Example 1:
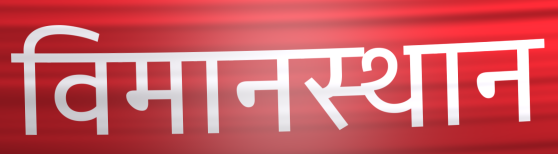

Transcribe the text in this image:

विमानस्थान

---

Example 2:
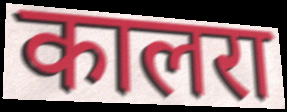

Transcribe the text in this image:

कालरा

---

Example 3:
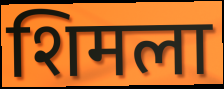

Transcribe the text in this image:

शिमला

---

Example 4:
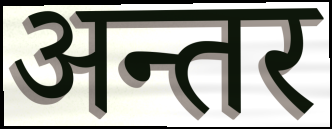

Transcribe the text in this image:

अन्तर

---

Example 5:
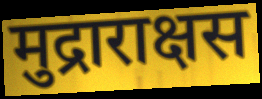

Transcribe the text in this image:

मुद्राराक्षस